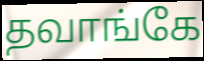
தவாங்கே